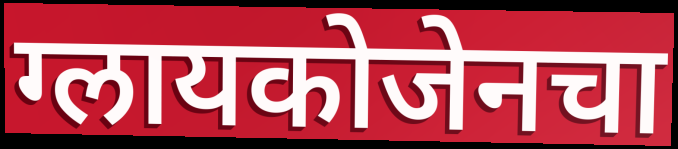
ग्लायकोजेनचा